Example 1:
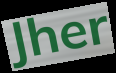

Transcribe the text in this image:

Jher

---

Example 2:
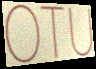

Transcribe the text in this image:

OTU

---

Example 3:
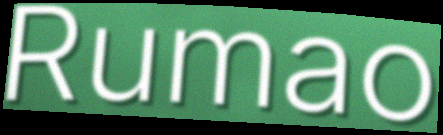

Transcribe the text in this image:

Rumao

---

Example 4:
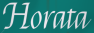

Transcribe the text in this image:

Horata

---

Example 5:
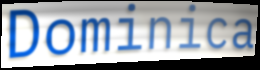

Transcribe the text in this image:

Dominica